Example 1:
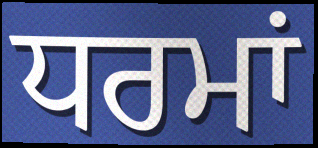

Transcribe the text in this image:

ਧਰਮਾਂ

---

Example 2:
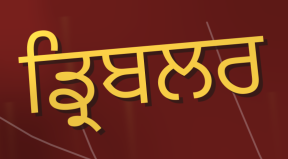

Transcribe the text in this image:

ਡ੍ਰਿਬਲਰ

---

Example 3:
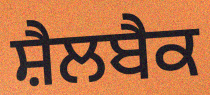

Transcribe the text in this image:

ਸ਼ੈਲਬੈਕ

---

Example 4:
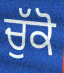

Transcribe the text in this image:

ਚੁੱਕੋ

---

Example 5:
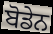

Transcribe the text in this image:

ਬੋਡੇਨ